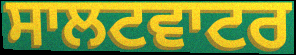
ਸਾਲਟਵਾਟਰ